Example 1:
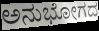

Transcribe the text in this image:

ಅನುಭೋಗದ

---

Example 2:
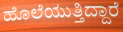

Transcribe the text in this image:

ಹೊಲೆಯುತ್ತಿದ್ದಾರೆ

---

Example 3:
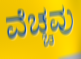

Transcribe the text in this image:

ವೆಚ್ಚವು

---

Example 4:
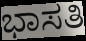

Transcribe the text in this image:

ಭಾಸತಿ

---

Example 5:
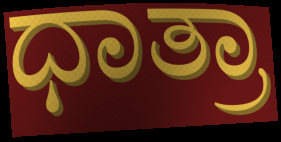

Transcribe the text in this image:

ಧಾತ್ರಾ